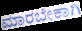
ಮಾರಬೇಕಾಗಿ